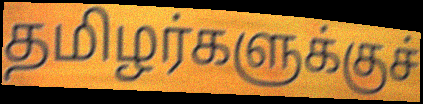
தமிழர்களுக்குச்